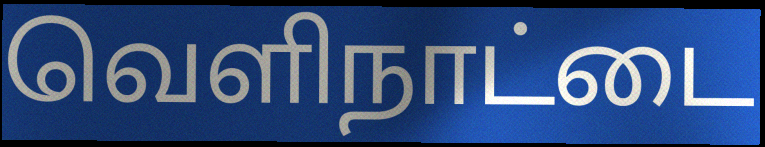
வெளிநாட்டை